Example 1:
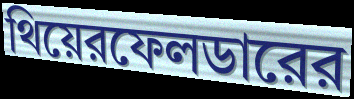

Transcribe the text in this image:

থিয়েরফেলডারের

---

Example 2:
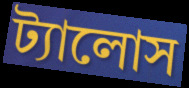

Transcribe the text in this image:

ট্যালোস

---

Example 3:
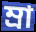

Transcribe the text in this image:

ম্রা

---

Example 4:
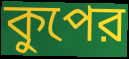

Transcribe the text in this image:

কুপের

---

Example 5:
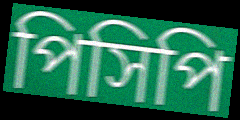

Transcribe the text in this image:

পিসিপি